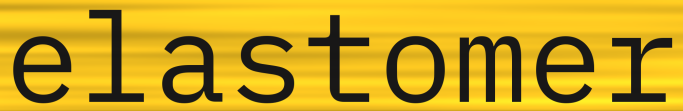
elastomer